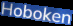
Hoboken